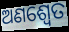
ଅଣଶ୍ୱେତ